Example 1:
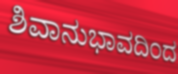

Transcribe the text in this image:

ಶಿವಾನುಭಾವದಿಂದ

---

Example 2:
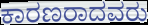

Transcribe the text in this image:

ಕಾರಣರಾದವರು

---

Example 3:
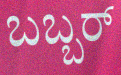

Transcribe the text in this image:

ಬಬ್ಬರ್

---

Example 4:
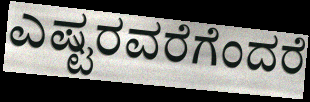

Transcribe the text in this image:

ಎಷ್ಟರವರೆಗೆಂದರೆ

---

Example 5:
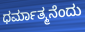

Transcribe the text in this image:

ಧರ್ಮಾತ್ಮನೆಂದು